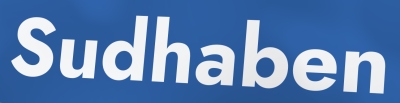
Sudhaben